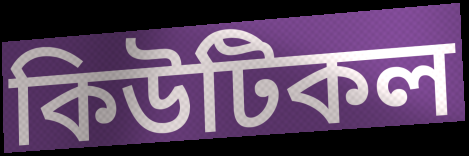
কিউটিকল